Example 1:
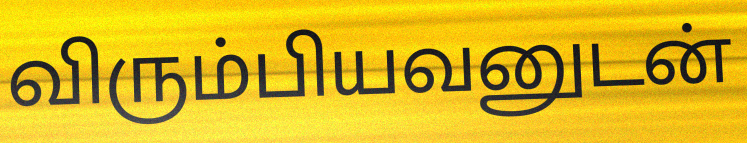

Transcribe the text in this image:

விரும்பியவனுடன்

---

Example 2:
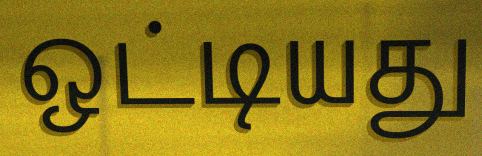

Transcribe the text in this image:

ஒட்டியது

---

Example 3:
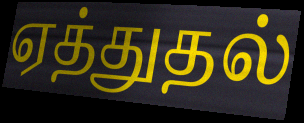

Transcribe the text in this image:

ஏத்துதல்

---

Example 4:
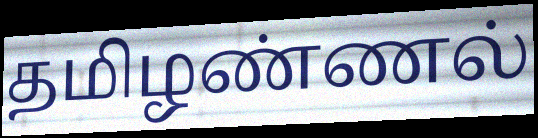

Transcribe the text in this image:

தமிழண்ணல்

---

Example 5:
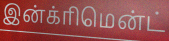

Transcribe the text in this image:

இன்க்ரிமென்ட்